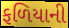
ફળિયાની